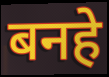
बनहे